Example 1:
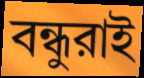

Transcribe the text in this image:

বন্ধুরাই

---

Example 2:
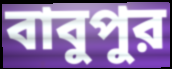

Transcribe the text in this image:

বাবুপুর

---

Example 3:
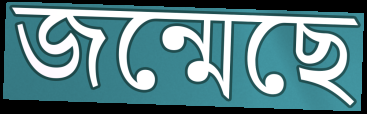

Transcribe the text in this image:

জন্মেছে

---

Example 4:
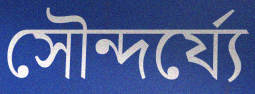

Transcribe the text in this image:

সৌন্দর্য্যে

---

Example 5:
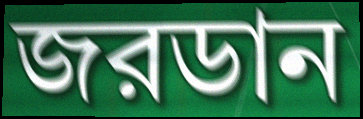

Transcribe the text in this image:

জরডান